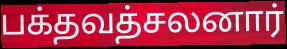
பக்தவத்சலனார்